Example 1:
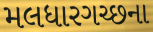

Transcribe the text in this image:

મલધારગચ્છના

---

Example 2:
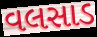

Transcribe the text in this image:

વલસાડ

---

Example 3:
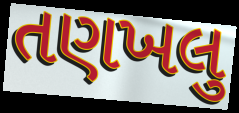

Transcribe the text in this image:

તણખલુ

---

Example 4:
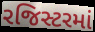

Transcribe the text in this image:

રજિસ્ટરમાં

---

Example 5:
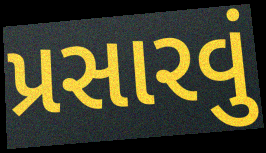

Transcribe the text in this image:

પ્રસારવું